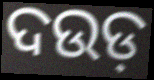
ଦଉଡ଼